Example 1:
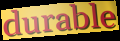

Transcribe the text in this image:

durable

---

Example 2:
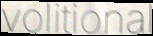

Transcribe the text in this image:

volitional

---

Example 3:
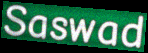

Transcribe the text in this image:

Saswad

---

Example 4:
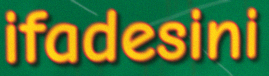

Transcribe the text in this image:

ifadesini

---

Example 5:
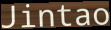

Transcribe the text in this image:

Jintao